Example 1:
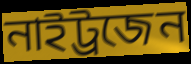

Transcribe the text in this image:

নাইট্রজেন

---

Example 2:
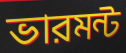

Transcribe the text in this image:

ভারমন্ট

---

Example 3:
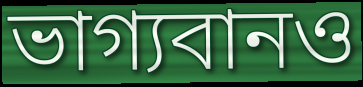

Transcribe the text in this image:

ভাগ্যবানও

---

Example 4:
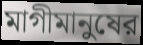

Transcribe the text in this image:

মাগীমানুষের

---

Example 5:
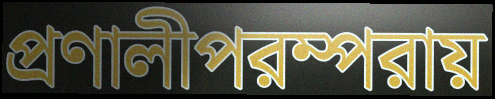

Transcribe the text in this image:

প্রণালীপরম্পরায়